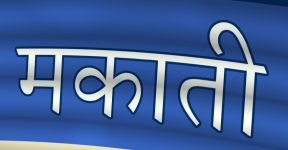
मकाती